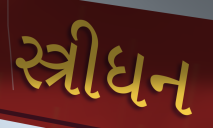
સ્ત્રીધન